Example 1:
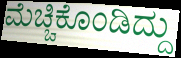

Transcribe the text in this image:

ಮೆಚ್ಚಿಕೊಂಡಿದ್ದು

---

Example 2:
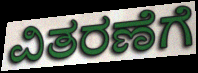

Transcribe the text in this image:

ವಿತರಣೆಗೆ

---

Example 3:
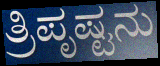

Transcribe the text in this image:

ತ್ರಿಪೃಷ್ಟನು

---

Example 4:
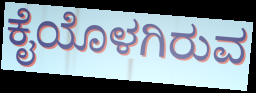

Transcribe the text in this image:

ಕೈಯೊಳಗಿರುವ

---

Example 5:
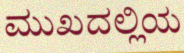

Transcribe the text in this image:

ಮುಖದಲ್ಲಿಯ